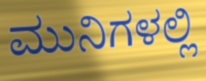
ಮುನಿಗಳಲ್ಲಿ